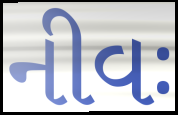
નીવઃ